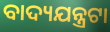
ବାଦ୍ୟଯନ୍ତ୍ରଟା